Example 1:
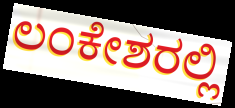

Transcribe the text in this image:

ಲಂಕೇಶರಲ್ಲಿ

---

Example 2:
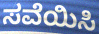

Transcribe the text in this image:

ಸವೆಯಿಸಿ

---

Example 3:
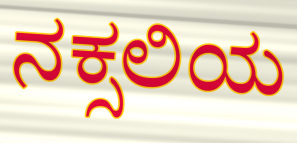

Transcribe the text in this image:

ನಕ್ಸಲಿಯ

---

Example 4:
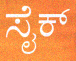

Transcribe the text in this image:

ಸೈಕ್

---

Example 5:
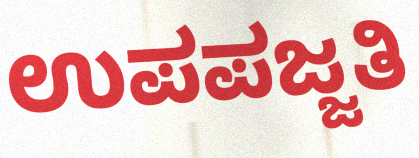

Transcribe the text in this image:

ಉಪಪಜ್ಜತಿ